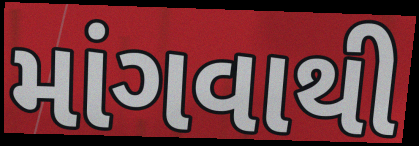
માંગવાથી